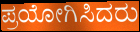
ಪ್ರಯೋಗಿಸಿದರು